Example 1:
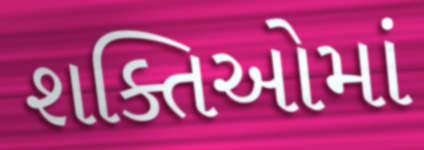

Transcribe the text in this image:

શક્તિઓમાં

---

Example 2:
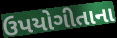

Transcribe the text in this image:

ઉપયોગીતાના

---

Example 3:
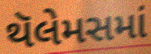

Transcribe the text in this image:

થૅલેમસમાં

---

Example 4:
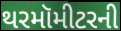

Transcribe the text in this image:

થરમૉમીટરની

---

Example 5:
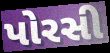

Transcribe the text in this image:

પોરસી